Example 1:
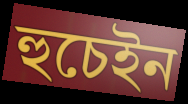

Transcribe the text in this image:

হুচেইন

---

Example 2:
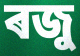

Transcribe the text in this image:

ৰজু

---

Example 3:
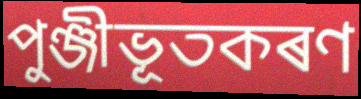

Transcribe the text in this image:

পুঞ্জীভূতকৰণ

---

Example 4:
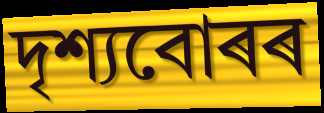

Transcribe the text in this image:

দৃশ্যবোৰৰ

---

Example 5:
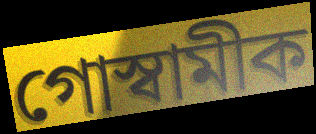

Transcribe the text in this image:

গোস্বামীক